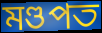
মণ্ডপত